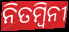
ନିତମ୍ବିନୀ